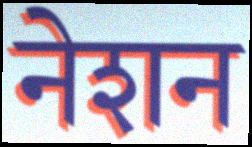
नेशन